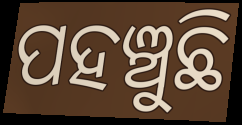
ପହଞ୍ଚୁଛି